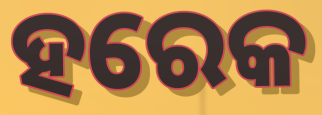
ହରେକ